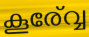
കൂര്വ്വേ